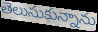
తెలుసుకున్నాను